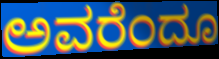
ಅವರೆಂದೂ